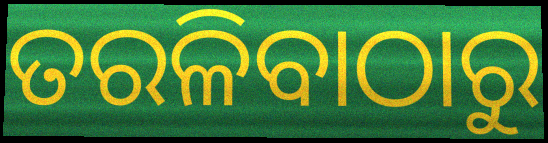
ତରଳିବାଠାରୁ